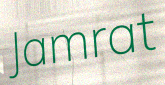
Jamrat